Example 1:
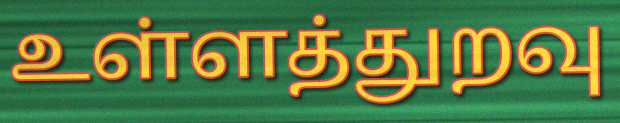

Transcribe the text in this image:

உள்ளத்துறவு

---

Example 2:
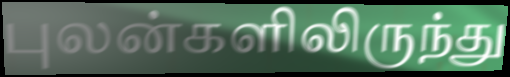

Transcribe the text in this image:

புலன்களிலிருந்து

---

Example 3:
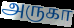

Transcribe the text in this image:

அருகா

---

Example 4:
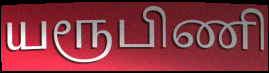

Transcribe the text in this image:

யரூபிணி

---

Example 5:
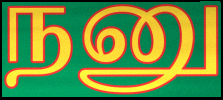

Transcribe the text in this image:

நனு